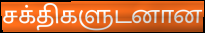
சக்திகளுடனான